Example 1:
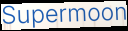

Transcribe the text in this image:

Supermoon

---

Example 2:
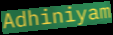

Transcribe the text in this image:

Adhiniyam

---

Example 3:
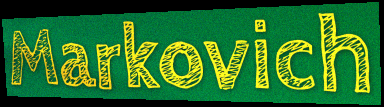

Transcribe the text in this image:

Markovich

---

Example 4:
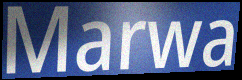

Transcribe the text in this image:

Marwa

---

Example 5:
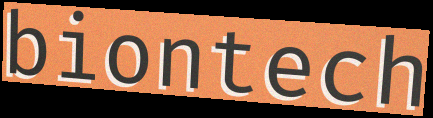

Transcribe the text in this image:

biontech